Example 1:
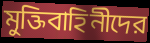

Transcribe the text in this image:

মুক্তিবাহিনীদের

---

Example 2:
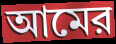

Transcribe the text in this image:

আমের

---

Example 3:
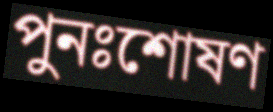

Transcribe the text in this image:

পুনঃশোষণ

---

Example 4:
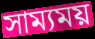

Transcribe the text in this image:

সাম্যময়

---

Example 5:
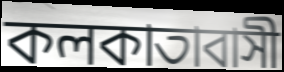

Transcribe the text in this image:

কলকাতাবাসী